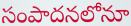
సంపాదనలోనూ